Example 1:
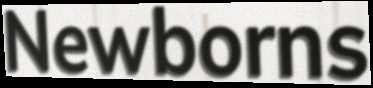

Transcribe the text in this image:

Newborns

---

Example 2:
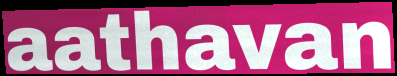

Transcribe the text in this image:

aathavan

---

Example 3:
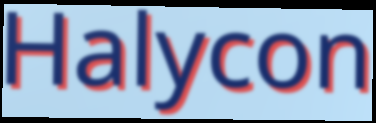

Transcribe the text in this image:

Halycon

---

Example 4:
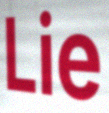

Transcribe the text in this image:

Lie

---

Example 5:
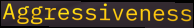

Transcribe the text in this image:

Aggressiveness